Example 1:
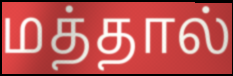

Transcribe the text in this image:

மத்தால்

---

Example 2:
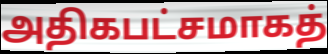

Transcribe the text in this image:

அதிகபட்சமாகத்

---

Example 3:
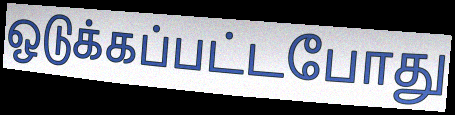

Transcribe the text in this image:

ஒடுக்கப்பட்டபோது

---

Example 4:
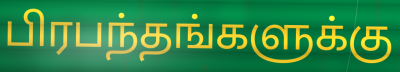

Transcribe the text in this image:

பிரபந்தங்களுக்கு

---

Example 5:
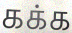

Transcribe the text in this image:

கக்க